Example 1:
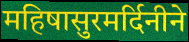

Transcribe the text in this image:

महिषासुरमर्दिनीने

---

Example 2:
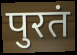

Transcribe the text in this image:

पुरतं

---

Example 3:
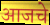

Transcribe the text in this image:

आजचे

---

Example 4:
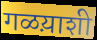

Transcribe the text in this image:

गळय़ाशी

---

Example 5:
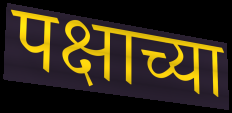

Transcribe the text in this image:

पक्षाच्या